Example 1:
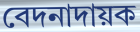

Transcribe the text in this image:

বেদনাদায়ক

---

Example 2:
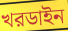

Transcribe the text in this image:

খরডাইন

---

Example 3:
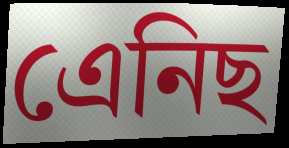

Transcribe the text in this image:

এেনিছ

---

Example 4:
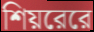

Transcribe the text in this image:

শিয়রেরে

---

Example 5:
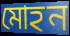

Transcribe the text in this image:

মোহন